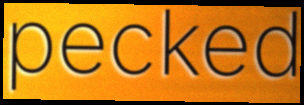
pecked